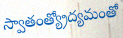
స్వాతంత్య్రోద్యమంతో